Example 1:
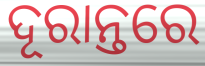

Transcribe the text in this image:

ଦୂରାନ୍ତରେ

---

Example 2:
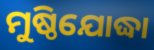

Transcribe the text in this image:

ମୁଷ୍ଠିଯୋଦ୍ଧା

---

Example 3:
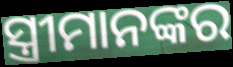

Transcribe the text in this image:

ସ୍ତ୍ରୀମାନଙ୍କର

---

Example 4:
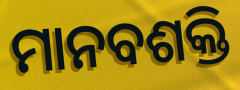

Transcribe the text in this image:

ମାନବଶକ୍ତି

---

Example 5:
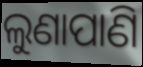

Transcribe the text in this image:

ଲୁଣାପାଣି